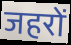
जहरों